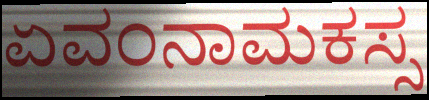
ಏವಂನಾಮಕಸ್ಸ